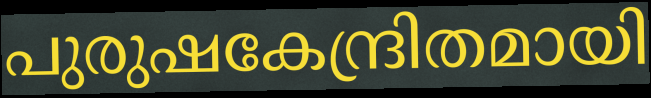
പുരുഷകേന്ദ്രിതമായി